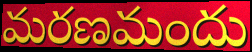
మరణమందు